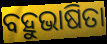
ବହୁଭାଷିତା